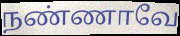
நண்ணாவே